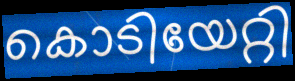
കൊടിയേറ്റി